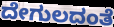
ದೇಗುಲದಂತೆ